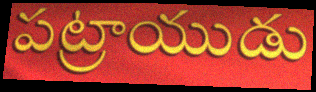
పట్రాయుడు